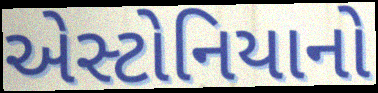
એસ્ટોનિયાનો